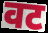
वट